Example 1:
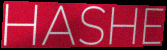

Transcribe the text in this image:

HASHE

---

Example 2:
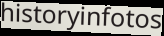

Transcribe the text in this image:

historyinfotos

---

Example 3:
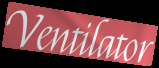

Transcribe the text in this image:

Ventilator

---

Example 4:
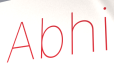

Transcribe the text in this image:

Abhi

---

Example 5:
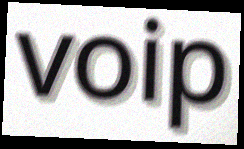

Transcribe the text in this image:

voip